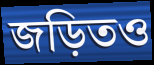
জড়িতও